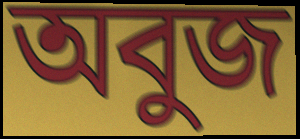
অবুজ